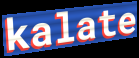
kalate